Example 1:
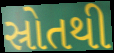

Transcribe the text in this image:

સ્રોતથી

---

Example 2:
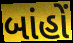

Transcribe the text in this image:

બાંહોં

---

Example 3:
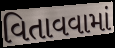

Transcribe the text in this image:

વિતાવવામાં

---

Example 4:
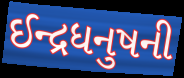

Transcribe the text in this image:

ઈન્દ્રધનુષની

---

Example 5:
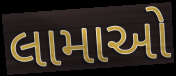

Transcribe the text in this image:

લામાઓ